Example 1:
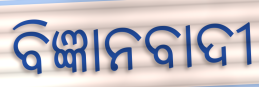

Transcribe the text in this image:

ବିଜ୍ଞାନବାଦୀ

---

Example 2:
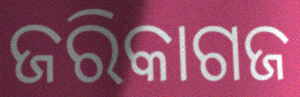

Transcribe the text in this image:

ଜରିକାଗଜ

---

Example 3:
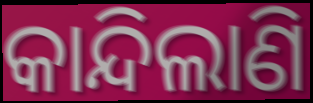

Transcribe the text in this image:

କାନ୍ଦିଲାଣି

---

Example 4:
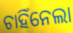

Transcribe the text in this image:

ଚାହିଁନେଲା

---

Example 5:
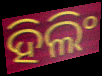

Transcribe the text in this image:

ହିଲିଂ